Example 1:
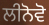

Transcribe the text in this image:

ਲੀਨੋਵੋ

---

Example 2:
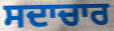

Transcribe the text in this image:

ਸਦਾਚਾਰ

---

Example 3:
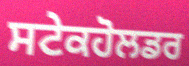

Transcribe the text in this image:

ਸਟੇਕਹੋਲਡਰ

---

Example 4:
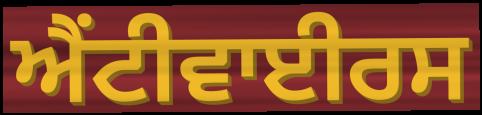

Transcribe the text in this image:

ਐਂਟੀਵਾਈਰਸ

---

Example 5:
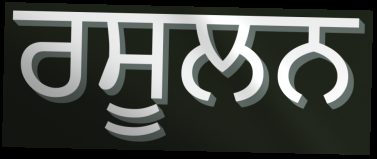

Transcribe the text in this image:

ਰਸੂਲਨ